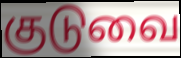
குடுவை